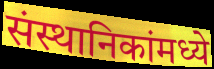
संस्थानिकांमध्ये